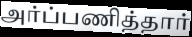
அர்ப்பணித்தார்